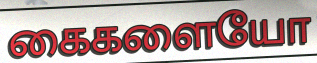
கைகளையோ